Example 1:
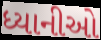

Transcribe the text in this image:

ધ્યાનીઓ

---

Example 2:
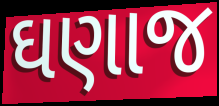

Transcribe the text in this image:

ઘણાજ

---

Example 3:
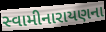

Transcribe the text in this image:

સ્વામીનારાયણના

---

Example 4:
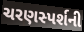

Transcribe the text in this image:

ચરણસ્પર્શની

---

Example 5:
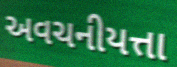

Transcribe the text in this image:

અવચનીયત્તા